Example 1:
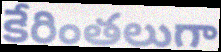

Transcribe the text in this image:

కేరింతలుగా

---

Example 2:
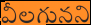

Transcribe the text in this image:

వీలగునని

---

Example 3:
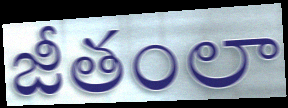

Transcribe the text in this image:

జీతంలా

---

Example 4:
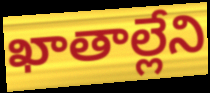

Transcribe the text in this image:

ఖాతాల్లేని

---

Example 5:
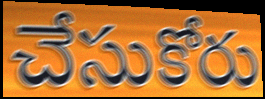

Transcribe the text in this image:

చేసుకోరు